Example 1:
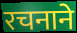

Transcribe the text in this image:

रचनाने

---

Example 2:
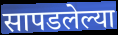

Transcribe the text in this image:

सापडलेल्‍या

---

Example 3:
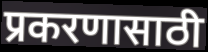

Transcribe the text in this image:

प्रकरणासाठी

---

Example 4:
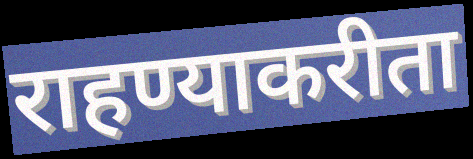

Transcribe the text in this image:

राहण्याकरीता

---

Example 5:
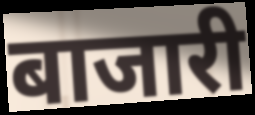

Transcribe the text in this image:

बाजारी